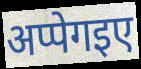
अप्पेगइए